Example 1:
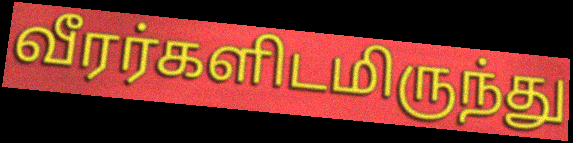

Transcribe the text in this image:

வீரர்களிடமிருந்து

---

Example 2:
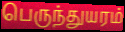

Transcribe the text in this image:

பெருந்துயரம்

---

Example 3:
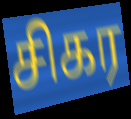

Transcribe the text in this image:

சிகர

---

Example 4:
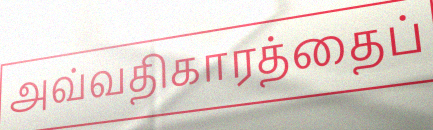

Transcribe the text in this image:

அவ்வதிகாரத்தைப்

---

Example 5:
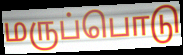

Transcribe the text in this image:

மருப்பொடு